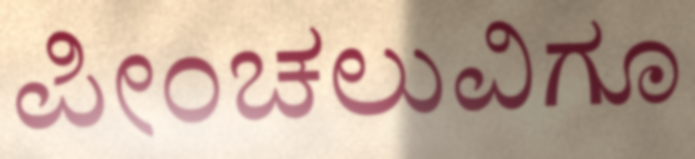
ಪೀಂಚಲುವಿಗೂ